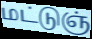
மட்டுஞ்